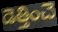
డెత్తించె